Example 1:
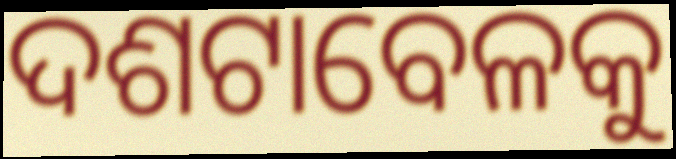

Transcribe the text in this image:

ଦଶଟାବେଳକୁ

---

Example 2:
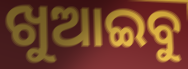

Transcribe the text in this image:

ଖୁଆଇବୁ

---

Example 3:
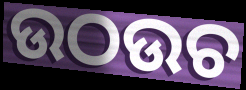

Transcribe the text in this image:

ଉଠଉଚ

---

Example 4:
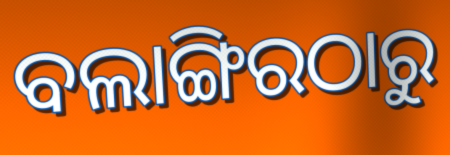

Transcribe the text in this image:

ବଲାଙ୍ଗିରଠାରୁ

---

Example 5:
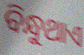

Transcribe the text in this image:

ବିନ୍ଧୁଥାଏ